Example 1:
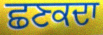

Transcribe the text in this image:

ਛਣਕਦਾ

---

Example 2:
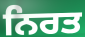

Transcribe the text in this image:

ਨਿਰਤ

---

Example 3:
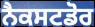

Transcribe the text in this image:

ਨੈਕਸਟਡੋਰ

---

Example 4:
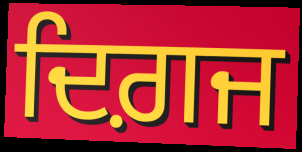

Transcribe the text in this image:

ਦਿਗ਼ਜ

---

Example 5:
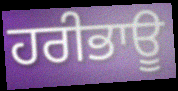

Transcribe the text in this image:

ਹਰੀਭਾਊ